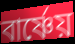
বার্ষ্ণেয়